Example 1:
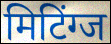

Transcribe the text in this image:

मिटिंग्ज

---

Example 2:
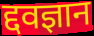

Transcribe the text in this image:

द्दवज्ञान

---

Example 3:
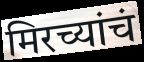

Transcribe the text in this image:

मिरच्यांचं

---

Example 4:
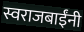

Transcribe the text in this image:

स्वराजबाईंनी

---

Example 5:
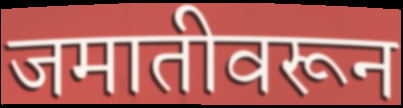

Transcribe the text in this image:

जमातीवरून